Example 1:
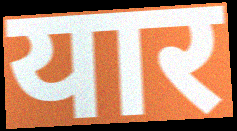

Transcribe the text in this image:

यार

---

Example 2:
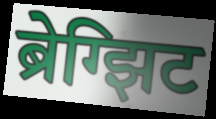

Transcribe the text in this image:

ब्रेग्झिट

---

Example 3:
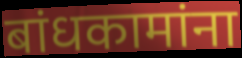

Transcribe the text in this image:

बांधकामांना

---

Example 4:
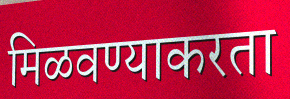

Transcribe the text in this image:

मिळवण्याकरता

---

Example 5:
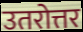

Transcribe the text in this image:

उतरोत्तर